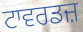
ਟਾਵਰਡਜ਼